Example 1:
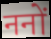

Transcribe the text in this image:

ननों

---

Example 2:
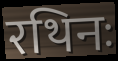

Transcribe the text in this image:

रथिनः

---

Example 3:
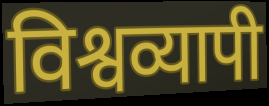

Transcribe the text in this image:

विश्वव्यापी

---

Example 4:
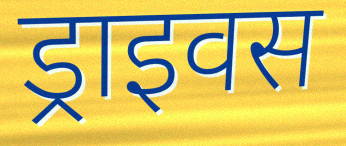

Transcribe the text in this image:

ड्राइवस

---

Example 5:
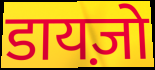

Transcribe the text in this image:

डायज़ो